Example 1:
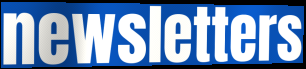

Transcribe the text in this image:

newsletters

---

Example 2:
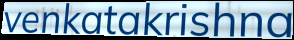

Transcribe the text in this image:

venkatakrishna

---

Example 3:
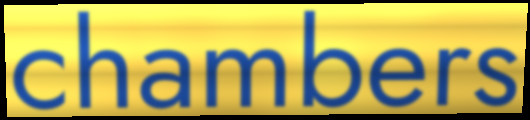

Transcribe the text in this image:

chambers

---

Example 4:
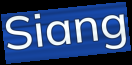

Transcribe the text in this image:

Siang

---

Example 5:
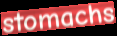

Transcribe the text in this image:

stomachs